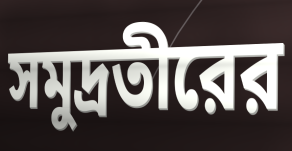
সমুদ্রতীরের